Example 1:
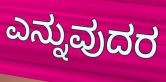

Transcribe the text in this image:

ಎನ್ನುವುದರ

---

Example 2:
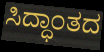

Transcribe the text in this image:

ಸಿದ್ಧಾಂತದ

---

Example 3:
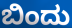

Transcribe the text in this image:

ಬಿಂದು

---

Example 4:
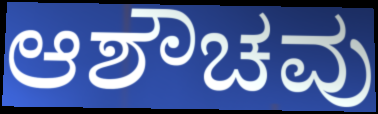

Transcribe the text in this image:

ಆಶೌಚವು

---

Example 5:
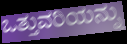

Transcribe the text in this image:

ಒತ್ತುವರಿಯನ್ನು